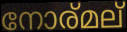
നോര്മല്